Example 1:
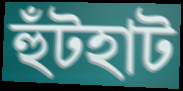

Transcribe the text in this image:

হুঁটহাট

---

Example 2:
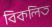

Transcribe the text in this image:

বিকলিত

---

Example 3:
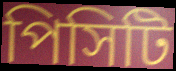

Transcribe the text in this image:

পিসিটি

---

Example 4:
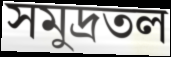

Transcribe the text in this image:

সমুদ্রতল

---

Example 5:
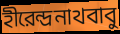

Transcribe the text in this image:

হীরেন্দ্রনাথবাবু